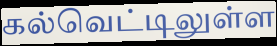
கல்வெட்டிலுள்ள